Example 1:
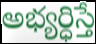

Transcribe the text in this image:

అభ్యర్ధిస్తే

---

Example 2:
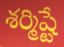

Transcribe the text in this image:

శర్మిష్టే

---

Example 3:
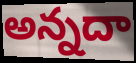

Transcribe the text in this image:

అన్నదా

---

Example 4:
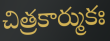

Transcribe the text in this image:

చిత్రకార్ముకః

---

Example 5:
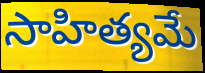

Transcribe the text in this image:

సాహిత్యమే